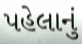
પહેલાનું